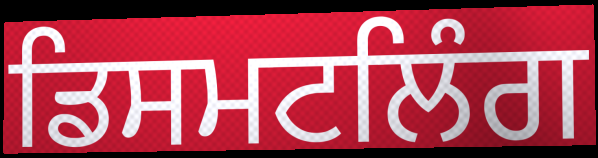
ਡਿਸਮਟਲਿੰਗ